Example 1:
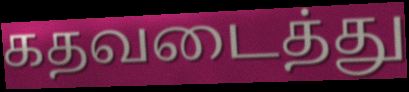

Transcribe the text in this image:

கதவடைத்து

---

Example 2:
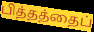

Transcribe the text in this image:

பித்தத்தைப்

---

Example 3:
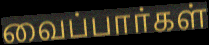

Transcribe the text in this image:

வைப்பார்கள்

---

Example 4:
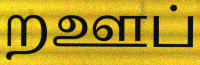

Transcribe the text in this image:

றஊப்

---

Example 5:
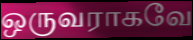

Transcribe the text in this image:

ஒருவராகவே